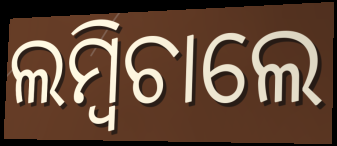
ଲମ୍ବିଚାଲେ